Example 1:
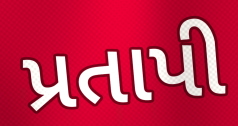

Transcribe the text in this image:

પ્રતાપી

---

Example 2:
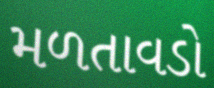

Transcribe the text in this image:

મળતાવડો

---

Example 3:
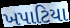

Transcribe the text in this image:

ખપાટિયા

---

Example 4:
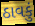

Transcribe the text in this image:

ઠાવકું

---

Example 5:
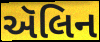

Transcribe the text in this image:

ઍલિન